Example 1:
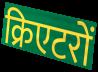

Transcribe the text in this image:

क्रिएटरों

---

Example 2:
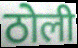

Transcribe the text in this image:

ठोली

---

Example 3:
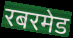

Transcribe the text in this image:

रबरमेड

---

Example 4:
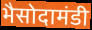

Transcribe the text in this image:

भैसोदामंडी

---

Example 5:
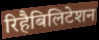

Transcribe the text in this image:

रिहैबिलिटेशन